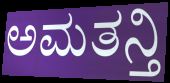
ಅಮತನ್ತಿ